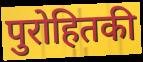
पुरोहितकी